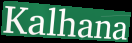
Kalhana